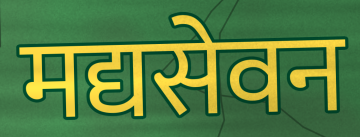
मद्यसेवन